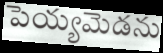
పెయ్యమెడను